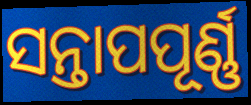
ସନ୍ତାପପୂର୍ଣ୍ଣ